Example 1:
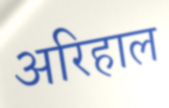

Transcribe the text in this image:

अरिहाल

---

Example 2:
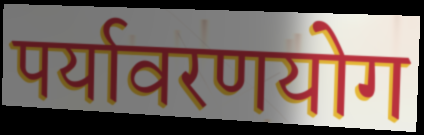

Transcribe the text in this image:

पर्यावरणयोग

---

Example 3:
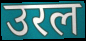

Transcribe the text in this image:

उरल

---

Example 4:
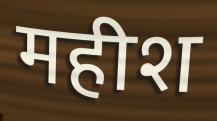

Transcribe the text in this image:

महीश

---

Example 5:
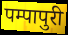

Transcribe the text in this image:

पम्पापुरी